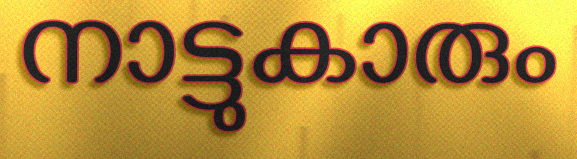
നാട്ടുകാരും